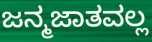
ಜನ್ಮಜಾತವಲ್ಲ